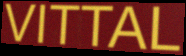
VITTAL